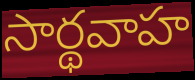
సార్థవాహ